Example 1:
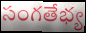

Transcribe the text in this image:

సంగతేభ్య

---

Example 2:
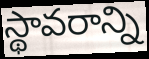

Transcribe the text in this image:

స్థావరాన్ని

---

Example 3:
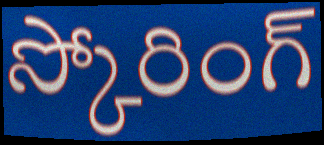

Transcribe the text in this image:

స్కోరింగ్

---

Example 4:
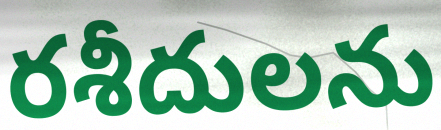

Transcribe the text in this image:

రశీదులను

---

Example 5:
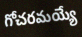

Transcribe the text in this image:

గోచరమయ్యే